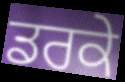
ਡਰਕੇ